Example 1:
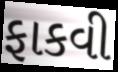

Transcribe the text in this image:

ફાકવી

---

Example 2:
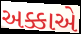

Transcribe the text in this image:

અક્કાએ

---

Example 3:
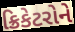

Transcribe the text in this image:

ક્રિકેટરોને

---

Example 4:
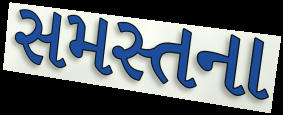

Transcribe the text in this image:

સમસ્તના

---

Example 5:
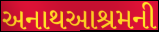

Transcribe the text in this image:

અનાથઆશ્રમની